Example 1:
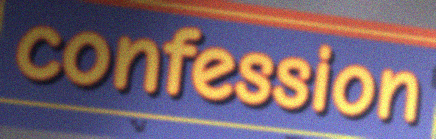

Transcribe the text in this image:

confession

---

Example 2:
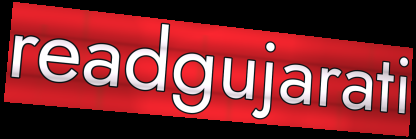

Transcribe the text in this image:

readgujarati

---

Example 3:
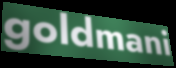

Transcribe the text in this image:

goldmani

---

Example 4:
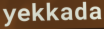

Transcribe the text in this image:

yekkada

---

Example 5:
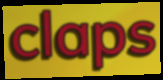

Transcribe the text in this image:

claps